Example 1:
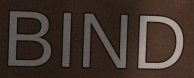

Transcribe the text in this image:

BIND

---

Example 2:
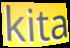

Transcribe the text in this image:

kita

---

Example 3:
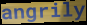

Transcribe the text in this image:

angrily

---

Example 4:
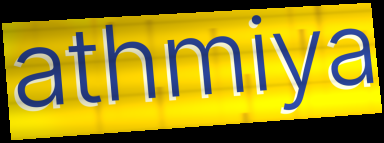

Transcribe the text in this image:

athmiya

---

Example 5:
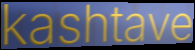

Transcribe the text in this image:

kashtave